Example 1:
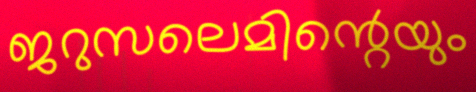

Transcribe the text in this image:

ജറുസലെമിന്റെയും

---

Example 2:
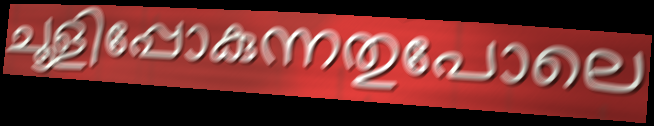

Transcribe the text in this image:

ചൂളിപ്പോകുന്നതുപോലെ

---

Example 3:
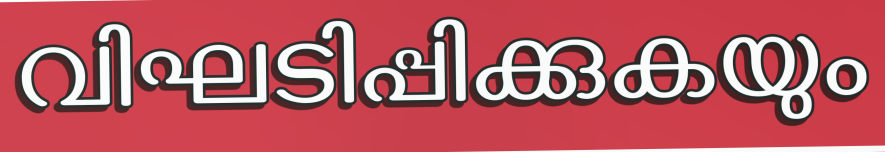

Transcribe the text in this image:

വിഘടിപ്പിക്കുകയും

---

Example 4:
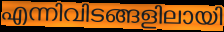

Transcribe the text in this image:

എന്നിവിടങ്ങളിലായി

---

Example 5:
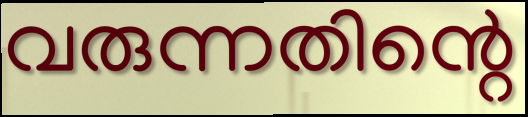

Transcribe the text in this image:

വരുന്നതിന്റെ